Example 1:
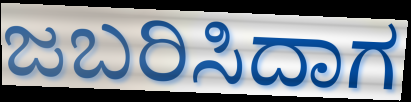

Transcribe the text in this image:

ಜಬರಿಸಿದಾಗ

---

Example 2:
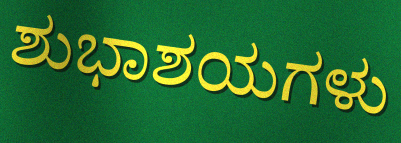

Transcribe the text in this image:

ಶುಭಾಶಯಗಳು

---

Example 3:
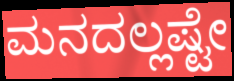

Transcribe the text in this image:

ಮನದಲ್ಲಷ್ಟೇ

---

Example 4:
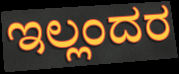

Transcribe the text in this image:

ಇಲ್ಲಂದರ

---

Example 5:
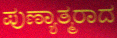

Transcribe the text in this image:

ಪುಣ್ಯಾತ್ಮರಾದ